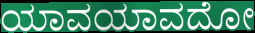
ಯಾವಯಾವದೋ